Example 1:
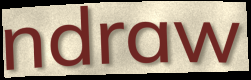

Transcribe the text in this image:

ndraw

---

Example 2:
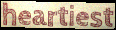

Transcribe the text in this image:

heartiest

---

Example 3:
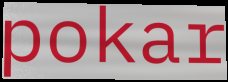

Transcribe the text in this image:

pokar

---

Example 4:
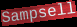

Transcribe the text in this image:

Sampsell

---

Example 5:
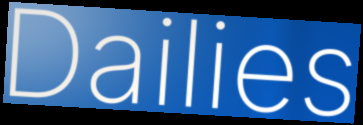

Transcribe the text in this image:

Dailies